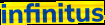
infinitus